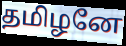
தமிழனே